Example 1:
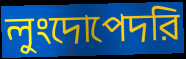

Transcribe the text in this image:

লুংদোপেদরি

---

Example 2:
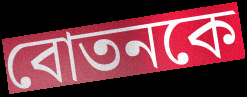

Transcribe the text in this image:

বোতনকে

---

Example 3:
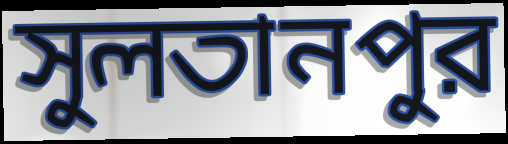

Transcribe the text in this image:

সুলতানপুর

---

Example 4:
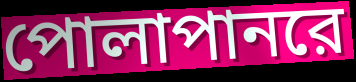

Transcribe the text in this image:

পোলাপানরে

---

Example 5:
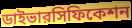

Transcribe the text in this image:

ডাইভারসিফিকেশন